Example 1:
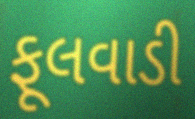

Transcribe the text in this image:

ફૂલવાડી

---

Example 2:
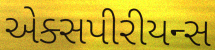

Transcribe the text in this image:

એક્સપીરીયન્સ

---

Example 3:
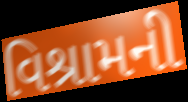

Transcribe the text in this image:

વિશ્રામની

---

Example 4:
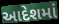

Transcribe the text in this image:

આદેશમાં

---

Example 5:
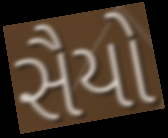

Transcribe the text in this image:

સૈયો